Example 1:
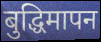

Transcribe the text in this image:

बुद्धिमापन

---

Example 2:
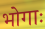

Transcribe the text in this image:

भोगाः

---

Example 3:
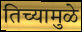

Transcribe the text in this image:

तिच्यामुळे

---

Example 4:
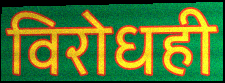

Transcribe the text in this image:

विरोधही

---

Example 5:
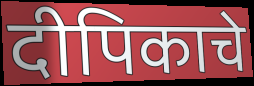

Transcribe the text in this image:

दीपिकाचे